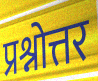
प्रश्नोत्तर